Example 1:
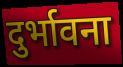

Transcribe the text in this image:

दुर्भावना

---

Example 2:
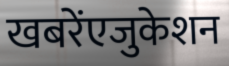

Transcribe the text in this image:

खबरेंएजुकेशन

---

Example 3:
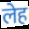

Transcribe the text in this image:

लेह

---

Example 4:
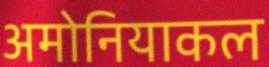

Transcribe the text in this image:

अमोनियाकल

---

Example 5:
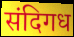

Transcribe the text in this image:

संदिगध